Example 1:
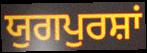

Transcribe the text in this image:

ਯੁਗਪੁਰਸ਼ਾਂ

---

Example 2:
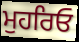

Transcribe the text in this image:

ਮੁਹਰਿਓ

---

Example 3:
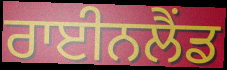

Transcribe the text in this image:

ਰਾਈਨਲੈਂਡ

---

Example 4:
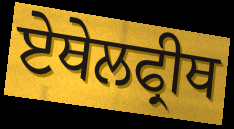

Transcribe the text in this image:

ਏਥੇਲਫ੍ਰੀਥ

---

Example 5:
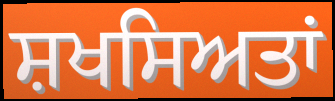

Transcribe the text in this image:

ਸ਼ਖਸਿਅਤਾਂ